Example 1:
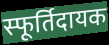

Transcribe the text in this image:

स्फूर्तिदायक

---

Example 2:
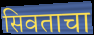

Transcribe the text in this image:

सिवताचा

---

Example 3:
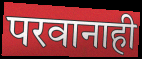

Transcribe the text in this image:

परवानाही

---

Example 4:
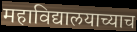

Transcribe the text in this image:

महाविद्यालयाच्याच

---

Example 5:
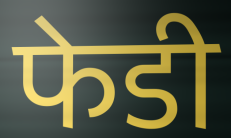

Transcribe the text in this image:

फेडी